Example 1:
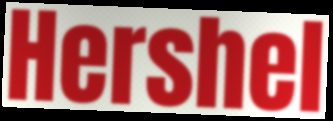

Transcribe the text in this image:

Hershel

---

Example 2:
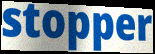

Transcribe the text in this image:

stopper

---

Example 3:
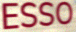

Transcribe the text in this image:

ESSO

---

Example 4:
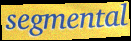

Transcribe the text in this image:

segmental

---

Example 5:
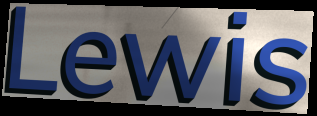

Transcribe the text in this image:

Lewis